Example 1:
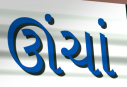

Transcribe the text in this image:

ઊંચાં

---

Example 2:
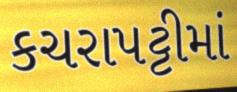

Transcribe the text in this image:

કચરાપટ્ટીમાં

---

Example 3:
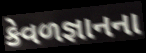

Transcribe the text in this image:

કેવળજ્ઞાનના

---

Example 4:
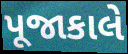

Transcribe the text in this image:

પૂજાકાલે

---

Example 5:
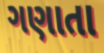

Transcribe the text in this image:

ગણાતા